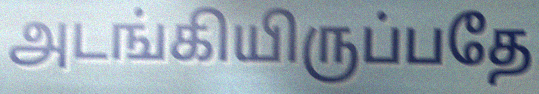
அடங்கியிருப்பதே